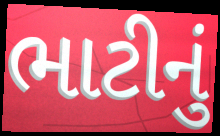
ભાટીનું